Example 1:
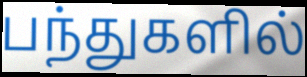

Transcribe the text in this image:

பந்துகளில்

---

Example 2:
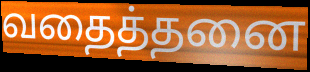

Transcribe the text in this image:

வதைத்தனை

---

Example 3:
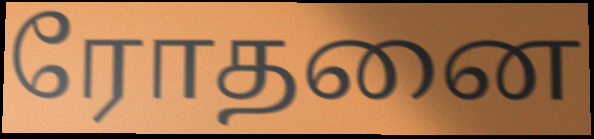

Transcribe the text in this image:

ரோதனை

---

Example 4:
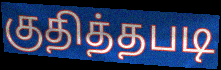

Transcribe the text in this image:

குதித்தபடி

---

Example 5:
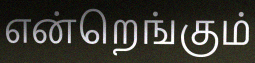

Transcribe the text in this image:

என்றெங்கும்